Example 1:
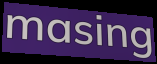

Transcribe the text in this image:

masing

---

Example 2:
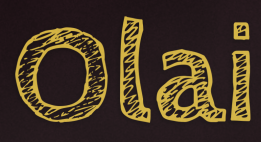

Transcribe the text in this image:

Olai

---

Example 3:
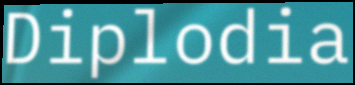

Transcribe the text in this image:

Diplodia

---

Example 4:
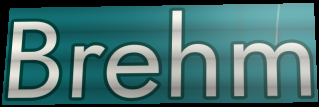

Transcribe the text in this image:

Brehm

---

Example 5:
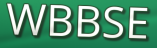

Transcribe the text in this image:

WBBSE